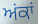
ਅਂਕਾਂ